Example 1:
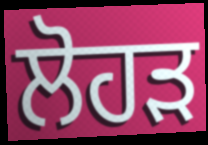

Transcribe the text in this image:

ਲੋਹੜ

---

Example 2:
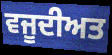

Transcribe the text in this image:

ਵਜੂਦੀਅਤ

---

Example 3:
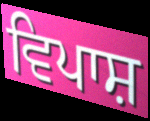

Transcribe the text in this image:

ਵਿਪਾਸ਼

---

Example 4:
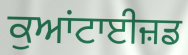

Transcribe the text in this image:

ਕੁਆਂਟਾਈਜ਼ਡ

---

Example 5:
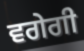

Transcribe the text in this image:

ਵਗੇਗੀ